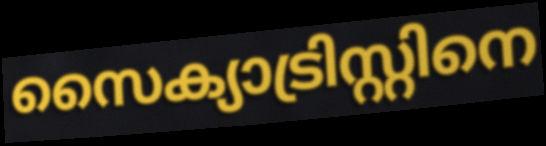
സൈക്യാട്രിസ്റ്റിനെ